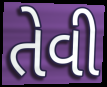
તેવી